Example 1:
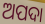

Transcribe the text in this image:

ଅପଦା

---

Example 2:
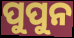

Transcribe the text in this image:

ପୁପୁନ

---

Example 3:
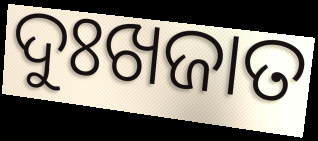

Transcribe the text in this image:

ଦୁଃଖଜାତ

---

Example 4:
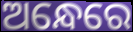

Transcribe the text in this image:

ଅନ୍ଧେରେ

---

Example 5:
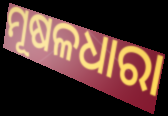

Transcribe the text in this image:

ମୂଷଳଧାରା